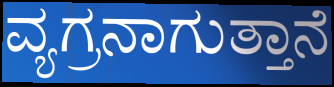
ವ್ಯಗ್ರನಾಗುತ್ತಾನೆ